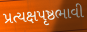
પ્રત્યક્ષપૃષ્ઠભાવી